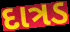
દાત્રડ